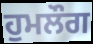
ਹੁਮਲੌਗ